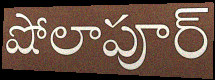
షోలాపూర్